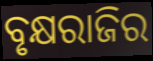
ବୃକ୍ଷରାଜିର